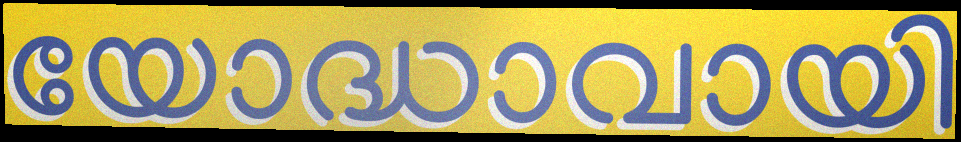
യോദ്ധാവായി